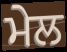
ਮੇਲ